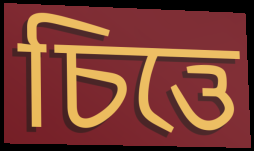
চিত্তে